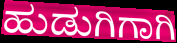
ಹುಡುಗಿಗಾಗಿ